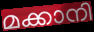
മക്കാനി